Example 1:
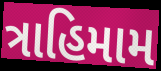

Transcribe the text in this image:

ત્રાહિમામ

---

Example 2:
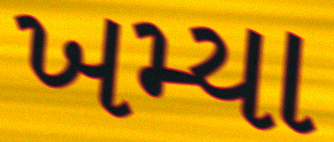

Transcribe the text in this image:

ખમ્યા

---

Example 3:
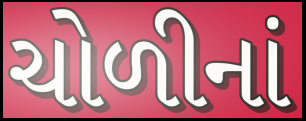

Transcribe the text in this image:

ચોળીનાં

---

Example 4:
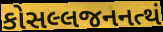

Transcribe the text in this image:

કોસલ્લજનનત્થં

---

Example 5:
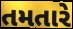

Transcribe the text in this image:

તમતારે